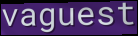
vaguest